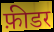
फ़ीडर